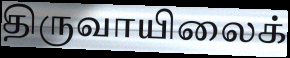
திருவாயிலைக்